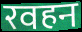
रवहन